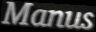
Manus